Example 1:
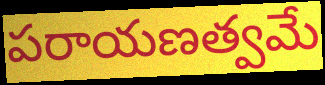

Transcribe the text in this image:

పరాయణత్వమే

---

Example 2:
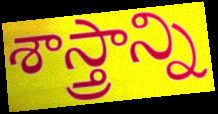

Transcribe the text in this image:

శాస్త్రాన్ని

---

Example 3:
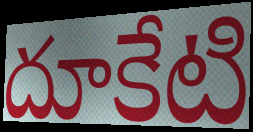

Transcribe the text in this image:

దూకేటి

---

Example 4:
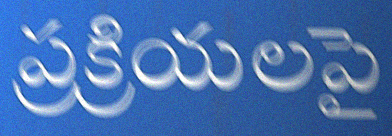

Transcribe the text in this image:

ప్రక్రియలపై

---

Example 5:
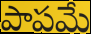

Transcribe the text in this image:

పాపమే